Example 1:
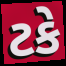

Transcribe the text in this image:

ટકે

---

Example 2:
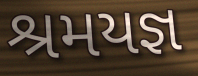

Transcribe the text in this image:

શ્રમયજ્ઞ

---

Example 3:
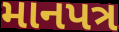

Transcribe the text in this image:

માનપત્ર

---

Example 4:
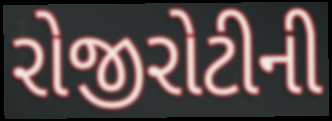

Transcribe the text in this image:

રોજીરોટીની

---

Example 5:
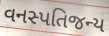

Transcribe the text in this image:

વનસ્પતિજન્ય